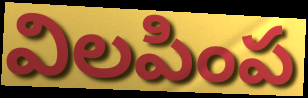
విలపింప